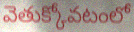
వెతుక్కోవటంలో